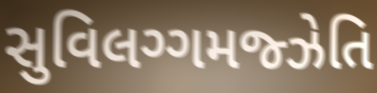
સુવિલગ્ગમજ્ઝેતિ